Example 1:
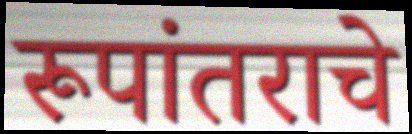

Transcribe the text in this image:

रूपांतराचे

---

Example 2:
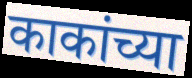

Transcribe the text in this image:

काकांच्या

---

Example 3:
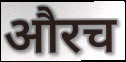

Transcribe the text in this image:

औरच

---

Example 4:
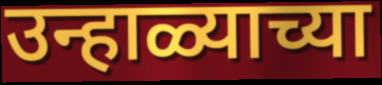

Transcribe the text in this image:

उन्हाळ्याच्या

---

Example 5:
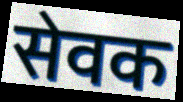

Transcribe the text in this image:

सेवक